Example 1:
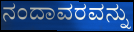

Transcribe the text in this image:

ನಂದಾವರವನ್ನು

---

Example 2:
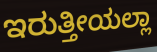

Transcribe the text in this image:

ಇರುತ್ತೀಯಲ್ಲಾ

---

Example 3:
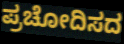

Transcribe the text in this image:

ಪ್ರಚೋದಿಸದ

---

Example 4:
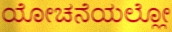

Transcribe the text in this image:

ಯೋಚನೆಯಲ್ಲೋ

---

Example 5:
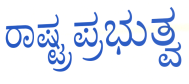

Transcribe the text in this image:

ರಾಷ್ಟ್ರಪ್ರಭುತ್ವ